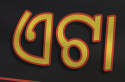
ଏଟା